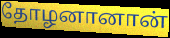
தோழனானான்